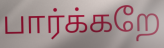
பார்க்கறே